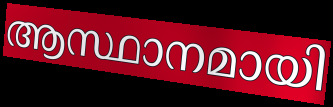
ആസ്ഥാനമായി